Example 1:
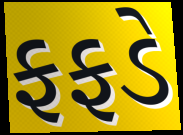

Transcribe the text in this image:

ફફડે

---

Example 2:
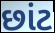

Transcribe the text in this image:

છાંટ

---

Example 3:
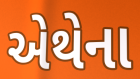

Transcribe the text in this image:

એથેના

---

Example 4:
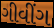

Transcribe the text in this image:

ગીવીંગ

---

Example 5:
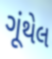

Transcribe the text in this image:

ગૂંથેલ